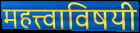
महत्त्वाविषयी